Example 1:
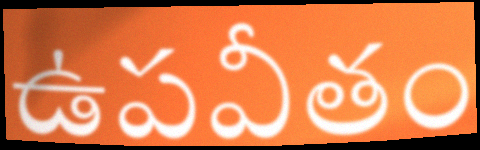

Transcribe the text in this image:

ఉపవీతం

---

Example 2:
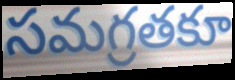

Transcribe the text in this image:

సమగ్రతకూ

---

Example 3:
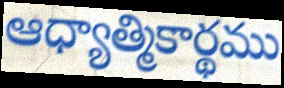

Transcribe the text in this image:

ఆధ్యాత్మికార్థము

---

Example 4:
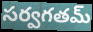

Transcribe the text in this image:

సర్వగతమ్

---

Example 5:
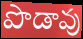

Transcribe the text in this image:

పొడావు